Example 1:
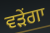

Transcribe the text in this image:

ਵੜੇਂਗਾ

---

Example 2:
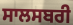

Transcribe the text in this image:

ਸਾਲਸਬਰੀ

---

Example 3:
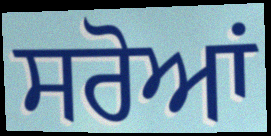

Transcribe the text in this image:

ਸਰੋਆਂ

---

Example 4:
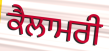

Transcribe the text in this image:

ਕੈਲਾਮਰੀ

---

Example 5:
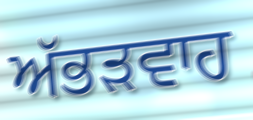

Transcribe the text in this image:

ਅੱਭੜਵਾਹ